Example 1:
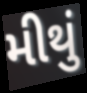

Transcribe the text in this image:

મીથું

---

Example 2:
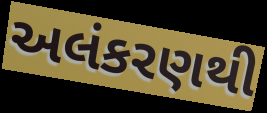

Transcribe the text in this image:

અલંકરણથી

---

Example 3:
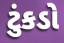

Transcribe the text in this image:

ટુંકડો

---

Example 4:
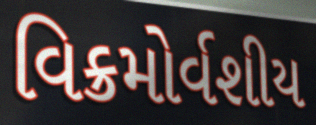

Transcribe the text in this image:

વિક્રમોર્વશીય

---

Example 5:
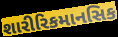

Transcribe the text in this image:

શારીરિકમાનસિક